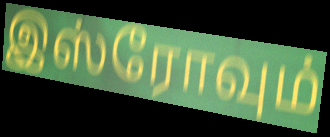
இஸ்ரோவும்